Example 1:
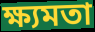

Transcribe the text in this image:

ক্ষ্যমতা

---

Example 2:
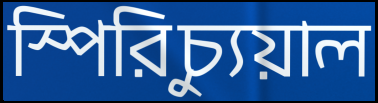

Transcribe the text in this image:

স্পিরিচ্যুয়াল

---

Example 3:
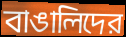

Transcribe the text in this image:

বাঙালিদের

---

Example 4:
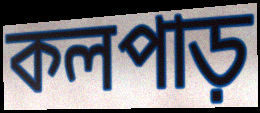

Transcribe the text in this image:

কলপাড়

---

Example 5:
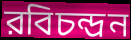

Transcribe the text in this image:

রবিচন্দ্রন